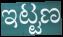
ಇಟ್ಟಣ